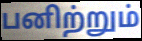
பனிற்றும்